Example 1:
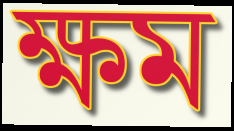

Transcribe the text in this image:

ক্ষম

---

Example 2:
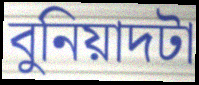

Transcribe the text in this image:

বুনিয়াদটা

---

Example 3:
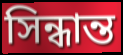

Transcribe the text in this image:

সিন্ধান্ত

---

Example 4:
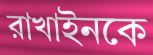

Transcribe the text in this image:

রাখাইনকে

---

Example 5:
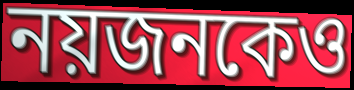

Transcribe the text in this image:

নয়জনকেও